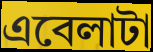
এবেলাটা